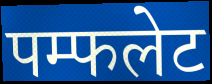
पम्फलेट